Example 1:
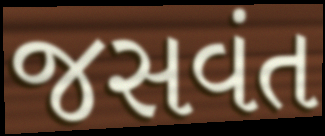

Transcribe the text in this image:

જસવંત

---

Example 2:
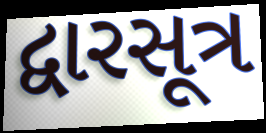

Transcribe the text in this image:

દ્વારસૂત્ર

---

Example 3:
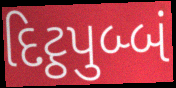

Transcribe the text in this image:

દિટ્ઠપુબ્બં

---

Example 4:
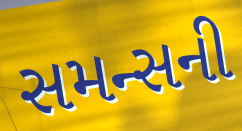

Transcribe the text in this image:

સમન્સની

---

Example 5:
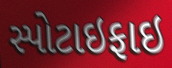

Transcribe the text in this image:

સ્પોટાઇફાઇ